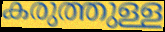
കരുത്തുള്ള